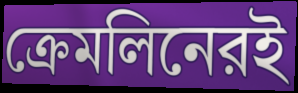
ক্রেমলিনেরই